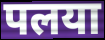
पलया